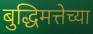
बुद्धिमत्तेच्या